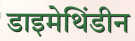
डाइमेथिंडीन